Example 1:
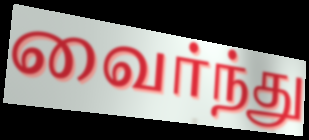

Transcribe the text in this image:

வைர்ந்து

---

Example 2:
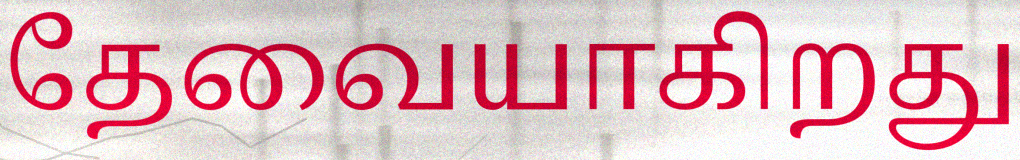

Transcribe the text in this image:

தேவையாகிறது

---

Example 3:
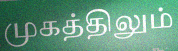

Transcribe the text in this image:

முகத்திலும்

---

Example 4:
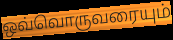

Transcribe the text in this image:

ஒவ்வொருவரையும்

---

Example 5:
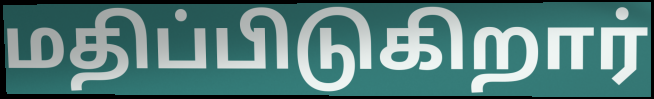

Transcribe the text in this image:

மதிப்பிடுகிறார்